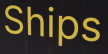
Ships